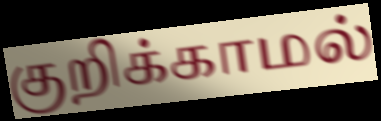
குறிக்காமல்